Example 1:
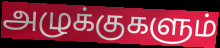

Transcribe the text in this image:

அழுக்குகளும்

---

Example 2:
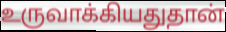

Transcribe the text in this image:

உருவாக்கியதுதான்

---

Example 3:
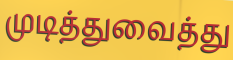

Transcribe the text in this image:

முடித்துவைத்து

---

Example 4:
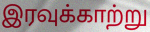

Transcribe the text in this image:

இரவுக்காற்று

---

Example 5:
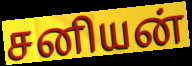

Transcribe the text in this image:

சனியன்